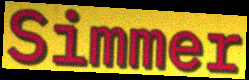
Simmer